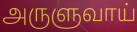
அருளுவாய்